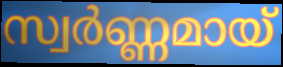
സ്വർണ്ണമായ്